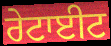
ਰੇਟਾਈਟ